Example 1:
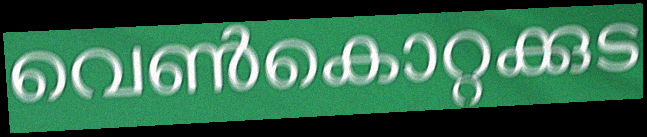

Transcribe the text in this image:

വെൺകൊറ്റക്കുട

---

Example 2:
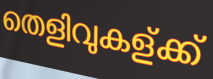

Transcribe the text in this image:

തെളിവുകള്ക്ക്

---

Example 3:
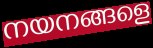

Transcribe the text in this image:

നയനങ്ങളെ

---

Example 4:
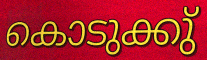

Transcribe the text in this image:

കൊടുക്കു്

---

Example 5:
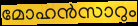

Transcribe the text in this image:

മോഹൻസാറും